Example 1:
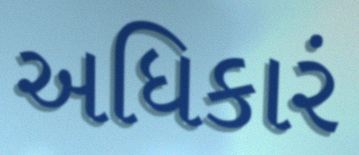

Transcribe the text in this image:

અધિકારં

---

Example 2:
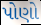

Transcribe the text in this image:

પોણો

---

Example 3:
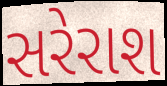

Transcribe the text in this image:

સરેરાશ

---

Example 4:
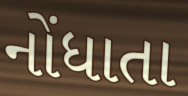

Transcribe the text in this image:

નોંધાતા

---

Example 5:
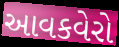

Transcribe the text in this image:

આવકવેરો